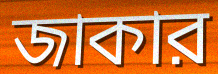
জাকার